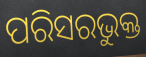
ପରିସରଭୁକ୍ତ